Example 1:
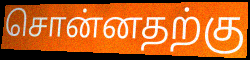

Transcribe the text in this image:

சொன்னதற்கு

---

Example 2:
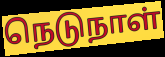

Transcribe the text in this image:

நெடுநாள்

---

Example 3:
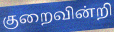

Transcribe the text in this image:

குறைவின்றி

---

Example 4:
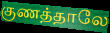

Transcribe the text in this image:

குணத்தாலே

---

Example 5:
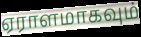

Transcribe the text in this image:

ஏராளமாகவும்